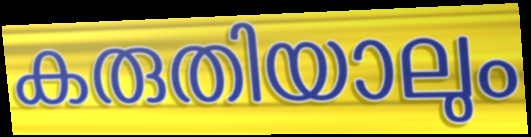
കരുതിയാലും